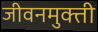
जीवनमुक्ती